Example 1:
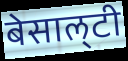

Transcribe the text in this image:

बेसाल्टी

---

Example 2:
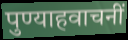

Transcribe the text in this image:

पुण्याहवाचनीं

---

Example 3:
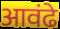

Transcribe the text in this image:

आवंढे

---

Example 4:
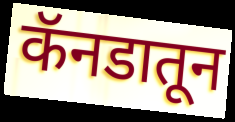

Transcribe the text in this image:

कॅनडातून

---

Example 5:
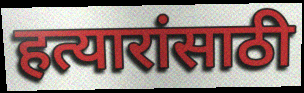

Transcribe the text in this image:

हत्यारांसाठी